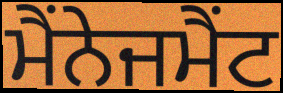
ਮੈਂਨੇਜਮੈਂਟ